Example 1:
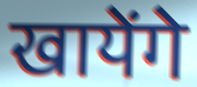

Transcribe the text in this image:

खायेंगे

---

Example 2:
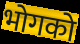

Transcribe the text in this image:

भोगको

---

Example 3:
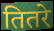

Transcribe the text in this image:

तितरे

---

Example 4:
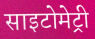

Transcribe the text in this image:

साइटोमेट्री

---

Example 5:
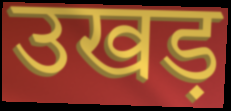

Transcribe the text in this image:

उखड़